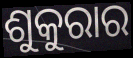
ଶୁକୁରାର